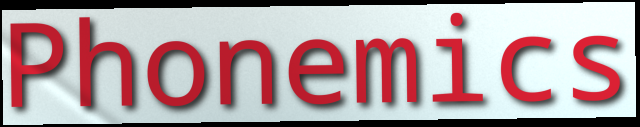
Phonemics